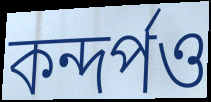
কন্দর্পও